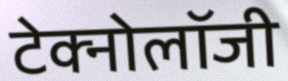
टेक्‍नोलॉजी